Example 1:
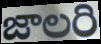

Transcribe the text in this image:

జాలరి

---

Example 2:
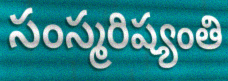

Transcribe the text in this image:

సంస్మరిష్యంతి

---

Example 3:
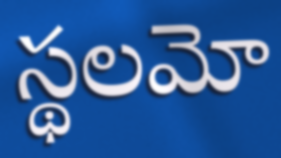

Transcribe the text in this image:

స్థలమో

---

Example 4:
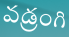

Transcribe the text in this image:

వడ్రంగి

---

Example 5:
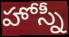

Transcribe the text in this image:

హోస్నీ